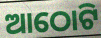
ଆଠୋଟି